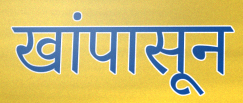
खांपासून